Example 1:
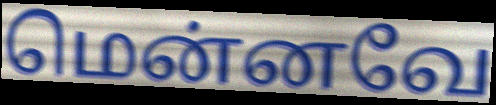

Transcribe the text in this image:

மென்னவே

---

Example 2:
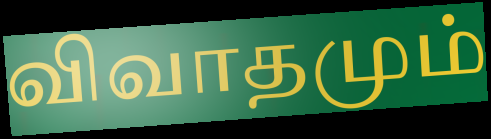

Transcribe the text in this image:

விவாதமும்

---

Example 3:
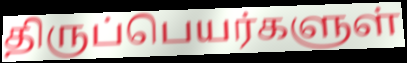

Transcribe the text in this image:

திருப்பெயர்களுள்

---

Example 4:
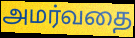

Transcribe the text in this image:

அமர்வதை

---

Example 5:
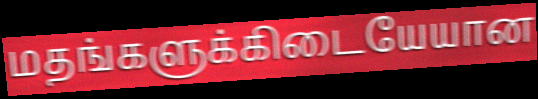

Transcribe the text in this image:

மதங்களுக்கிடையேயான